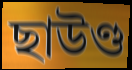
ছাউণ্ড